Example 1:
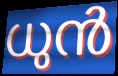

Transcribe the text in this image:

ധുൻ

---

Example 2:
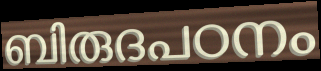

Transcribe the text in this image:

ബിരുദപഠനം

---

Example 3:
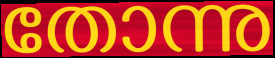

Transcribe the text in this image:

തോന്നു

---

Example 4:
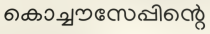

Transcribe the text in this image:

കൊച്ചൗസേപ്പിന്റെ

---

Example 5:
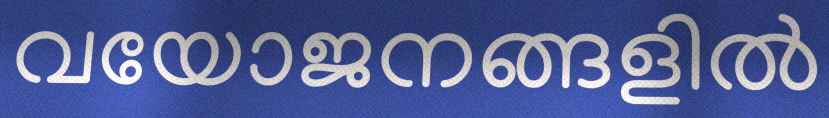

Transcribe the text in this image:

വയോജനങ്ങളിൽ